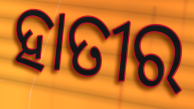
ହାତୀର